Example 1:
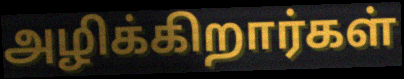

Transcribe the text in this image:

அழிக்கிறார்கள்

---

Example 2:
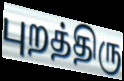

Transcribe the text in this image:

புறத்திரு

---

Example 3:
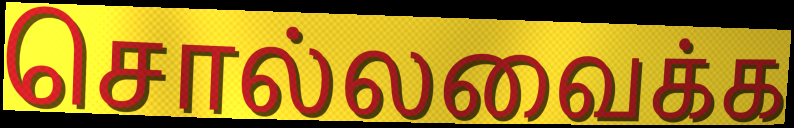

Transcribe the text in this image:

சொல்லவைக்க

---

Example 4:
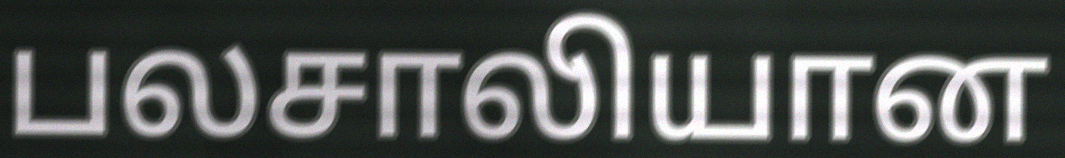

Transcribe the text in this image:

பலசாலியான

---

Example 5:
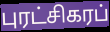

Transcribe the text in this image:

புரட்சிகரப்